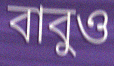
বাবুও